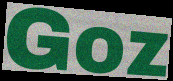
Goz